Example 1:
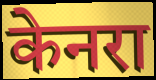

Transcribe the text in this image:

केनरा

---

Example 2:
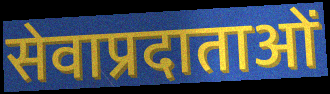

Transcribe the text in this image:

सेवाप्रदाताओं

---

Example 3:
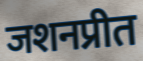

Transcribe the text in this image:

जशनप्रीत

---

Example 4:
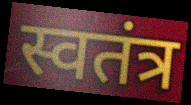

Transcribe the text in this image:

स्वतंत्र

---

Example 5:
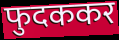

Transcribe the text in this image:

फुदककर